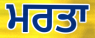
ਮਰਤਾ